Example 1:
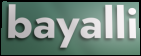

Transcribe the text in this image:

bayalli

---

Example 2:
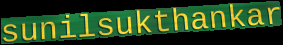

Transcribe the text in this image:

sunilsukthankar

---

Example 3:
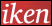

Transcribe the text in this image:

iken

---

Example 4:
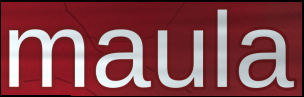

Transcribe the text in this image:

maula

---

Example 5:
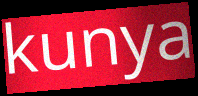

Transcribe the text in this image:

kunya